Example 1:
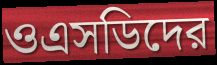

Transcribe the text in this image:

ওএসডিদের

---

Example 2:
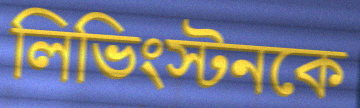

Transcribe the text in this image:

লিভিংস্টনকে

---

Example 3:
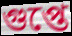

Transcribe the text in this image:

গুপ্তে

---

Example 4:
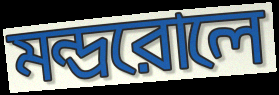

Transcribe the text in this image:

মন্দ্ররোলে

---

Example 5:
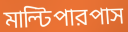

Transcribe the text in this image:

মাল্টিপারপাস